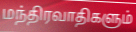
மந்திரவாதிகளும்